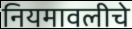
नियमावलीचे